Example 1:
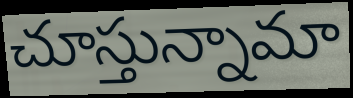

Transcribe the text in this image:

చూస్తున్నామా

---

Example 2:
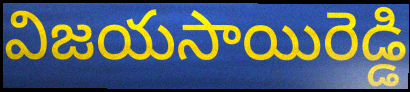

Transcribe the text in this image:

విజయసాయిరెడ్డి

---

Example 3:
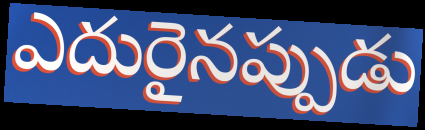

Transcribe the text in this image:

ఎదురైనప్పుడు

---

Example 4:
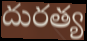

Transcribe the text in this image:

దురత్య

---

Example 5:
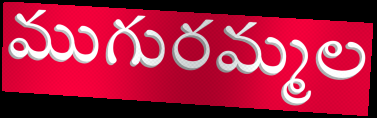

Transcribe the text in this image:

ముగురమ్మల